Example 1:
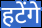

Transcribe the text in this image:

हटेंगे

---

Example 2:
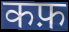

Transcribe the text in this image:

कफ़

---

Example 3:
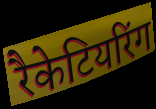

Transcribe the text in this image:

रैकेटियरिंग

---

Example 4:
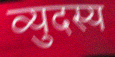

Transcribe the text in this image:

व्युदस्य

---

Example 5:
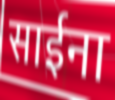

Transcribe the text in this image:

साईना